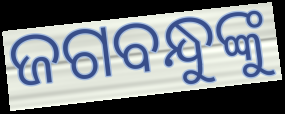
ଜଗବନ୍ଧୁଙ୍କୁ